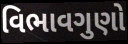
વિભાવગુણો